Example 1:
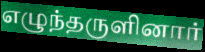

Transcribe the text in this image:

எழுந்தருளினார்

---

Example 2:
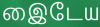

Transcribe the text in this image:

இைடேய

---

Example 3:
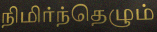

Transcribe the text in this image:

நிமிர்ந்தெழும்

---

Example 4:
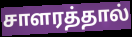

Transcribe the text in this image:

சாளரத்தால்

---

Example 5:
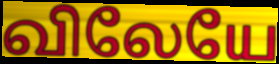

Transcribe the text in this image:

விலேயே